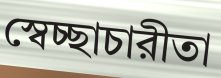
স্বেচ্ছাচারীতা